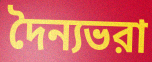
দৈন্যভরা